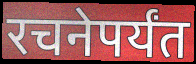
रचनेपर्यंत